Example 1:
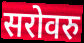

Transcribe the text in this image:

सरोवरु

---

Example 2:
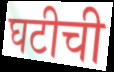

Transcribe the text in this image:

घटीची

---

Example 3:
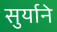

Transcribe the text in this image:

सुर्याने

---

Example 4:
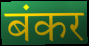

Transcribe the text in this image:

बंकर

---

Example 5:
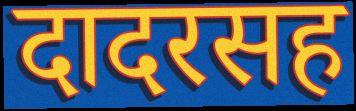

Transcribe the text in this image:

दादरसह